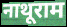
नाथूराम